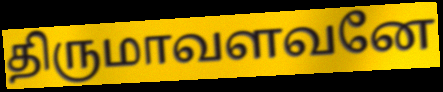
திருமாவளவனே